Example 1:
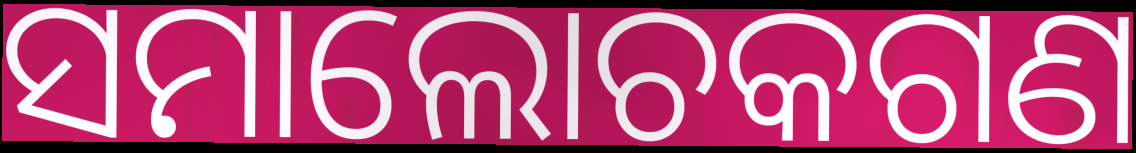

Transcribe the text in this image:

ସମାଲୋଚକଗଣ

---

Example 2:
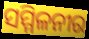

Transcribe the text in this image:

ସମ୍ମିଳନୀର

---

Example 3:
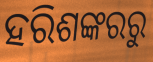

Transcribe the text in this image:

ହରିଶଙ୍କରରୁ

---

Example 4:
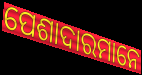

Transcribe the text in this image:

ପେଶାଦାରମାନେ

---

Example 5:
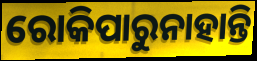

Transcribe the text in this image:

ରୋକିପାରୁନାହାନ୍ତି